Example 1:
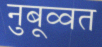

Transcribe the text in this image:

नुबूव्वत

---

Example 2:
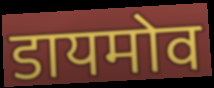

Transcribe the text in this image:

डायमोव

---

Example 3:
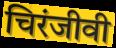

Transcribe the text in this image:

चिरंजीवी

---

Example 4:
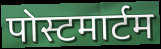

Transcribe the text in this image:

पोस्टमार्टम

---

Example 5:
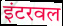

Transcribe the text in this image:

इंटरवल